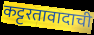
कट्टरतावादाची